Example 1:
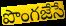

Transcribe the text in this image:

పొంగజేసే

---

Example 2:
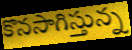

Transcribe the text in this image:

కొనసాగిస్తున్న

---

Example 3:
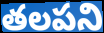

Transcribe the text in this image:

తలపని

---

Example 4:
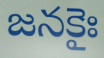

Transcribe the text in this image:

జనకైః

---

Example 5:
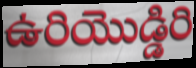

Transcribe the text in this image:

ఉరియొడ్డిరి